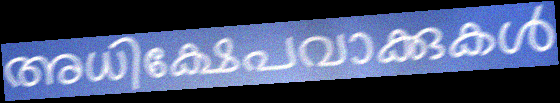
അധിക്ഷേപവാക്കുകൾ